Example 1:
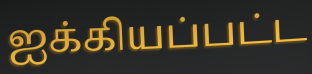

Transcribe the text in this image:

ஐக்கியப்பட்ட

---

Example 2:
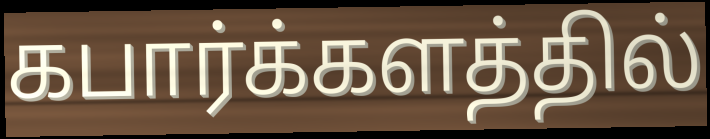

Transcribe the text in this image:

கபார்க்களத்தில்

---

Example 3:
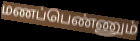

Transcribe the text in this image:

மணப்பெண்ணும்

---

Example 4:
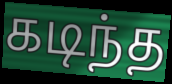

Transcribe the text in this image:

கடிந்த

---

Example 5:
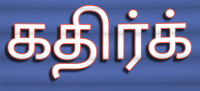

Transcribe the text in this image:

கதிர்க்